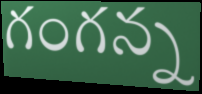
గంగన్న